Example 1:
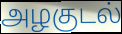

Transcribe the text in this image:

அழகுடல்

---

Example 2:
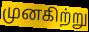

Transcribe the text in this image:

முனகிற்று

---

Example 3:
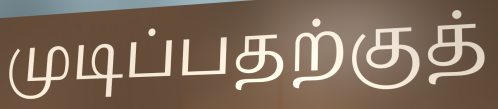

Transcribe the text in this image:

முடிப்பதற்குத்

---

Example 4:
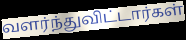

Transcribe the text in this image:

வளர்ந்துவிட்டார்கள்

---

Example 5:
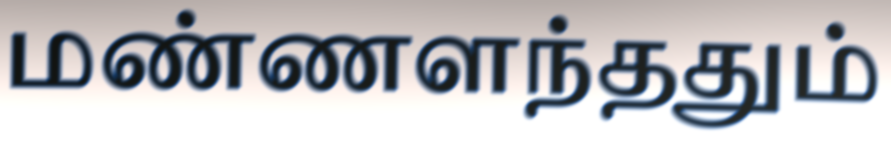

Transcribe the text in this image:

மண்ணளந்ததும்